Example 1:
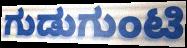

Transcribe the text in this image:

ಗುಡುಗುಂಟಿ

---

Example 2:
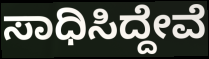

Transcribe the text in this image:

ಸಾಧಿಸಿದ್ದೇವೆ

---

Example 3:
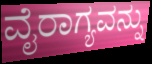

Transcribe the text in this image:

ವೈರಾಗ್ಯವನ್ನು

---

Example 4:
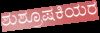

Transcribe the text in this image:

ಶುಶ್ರೂಷಕಿಯರ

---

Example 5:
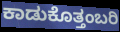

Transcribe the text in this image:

ಕಾಡುಕೊತ್ತಂಬರಿ